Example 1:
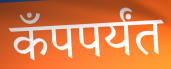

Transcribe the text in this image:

कँपपर्यंत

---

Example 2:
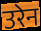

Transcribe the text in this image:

उरेन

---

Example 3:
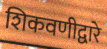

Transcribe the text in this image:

शिकवणीद्वारे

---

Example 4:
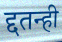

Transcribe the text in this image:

द्दतन्ही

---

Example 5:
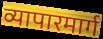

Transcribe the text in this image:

व्यापारमार्ग